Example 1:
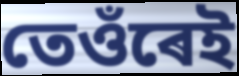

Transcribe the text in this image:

তেওঁৰেই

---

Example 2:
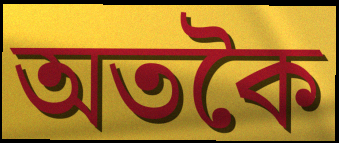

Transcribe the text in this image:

অতকৈ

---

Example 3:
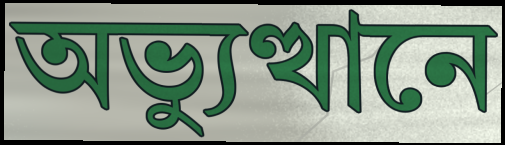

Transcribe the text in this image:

অভ্য়ুত্থানে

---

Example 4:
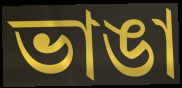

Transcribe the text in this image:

ভাঙা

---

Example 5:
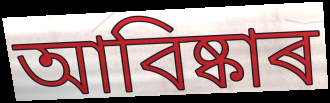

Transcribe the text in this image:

আবিষ্কাৰ